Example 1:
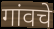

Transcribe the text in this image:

गांवचे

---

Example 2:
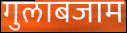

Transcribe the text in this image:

गुलाबजाम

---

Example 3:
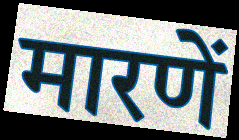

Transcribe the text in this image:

मारणें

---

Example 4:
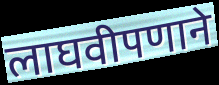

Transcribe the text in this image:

लाघवीपणाने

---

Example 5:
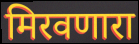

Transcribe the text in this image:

मिरवणारा